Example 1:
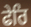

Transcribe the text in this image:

ਫੇਰਿ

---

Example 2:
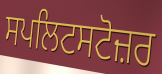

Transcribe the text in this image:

ਸਪਲਿਟਸਟੋਜ਼ਰ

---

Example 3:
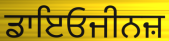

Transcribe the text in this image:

ਡਾਇਓਜੀਨਜ਼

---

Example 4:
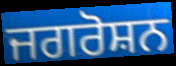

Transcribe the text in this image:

ਜਗਰੋਸ਼ਨ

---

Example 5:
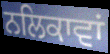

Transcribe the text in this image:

ਨਲਿਕਾਵਾਂ